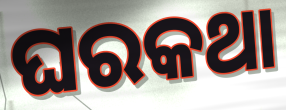
ଘରକଥା